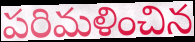
పరిమళించిన